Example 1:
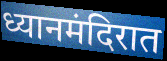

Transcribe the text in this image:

ध्यानमंदिरात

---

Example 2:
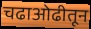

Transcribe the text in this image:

चढाओढीतून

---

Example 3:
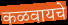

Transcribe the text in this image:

कळवायचे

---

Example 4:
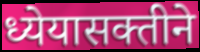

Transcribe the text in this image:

ध्येयासक्तीने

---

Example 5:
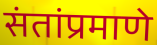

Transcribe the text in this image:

संतांप्रमाणे